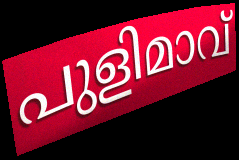
പുളിമാവ്